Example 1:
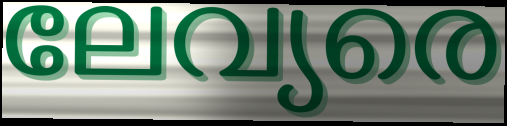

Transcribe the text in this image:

ലേവ്യരെ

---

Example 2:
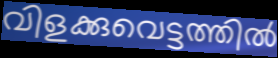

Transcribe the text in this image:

വിളക്കുവെട്ടത്തിൽ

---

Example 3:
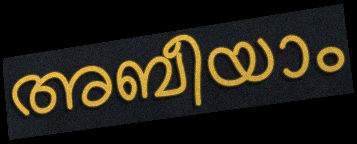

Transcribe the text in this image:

അബീയാം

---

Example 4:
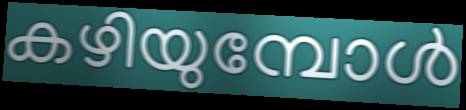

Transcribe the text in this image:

കഴിയുമ്പോൾ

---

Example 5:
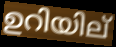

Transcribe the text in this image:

ഉറിയില്